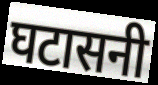
घटासनी